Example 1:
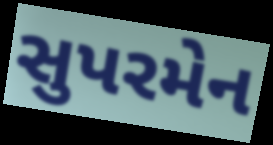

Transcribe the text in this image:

સુપરમેન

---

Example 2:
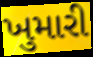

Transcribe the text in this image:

ખુમારી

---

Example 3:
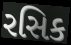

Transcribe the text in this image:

રસિક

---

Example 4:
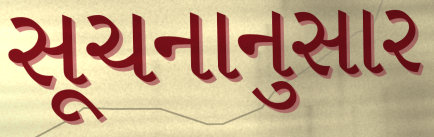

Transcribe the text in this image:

સૂચનાનુસાર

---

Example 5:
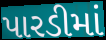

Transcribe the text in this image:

પારડીમાં